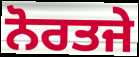
ਨੋਰਤਜੇ